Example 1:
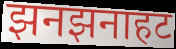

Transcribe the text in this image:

झनझनाहट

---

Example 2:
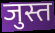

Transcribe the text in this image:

जुस्त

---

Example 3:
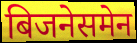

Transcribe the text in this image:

बिजनेसमेन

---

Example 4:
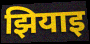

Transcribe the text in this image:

झियाइ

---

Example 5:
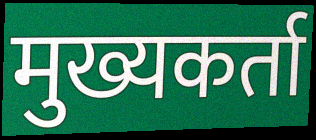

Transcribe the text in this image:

मुख्यकर्ता